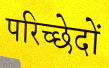
परिच्छेदों